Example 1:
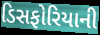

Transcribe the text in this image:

ડિસફોરિયાની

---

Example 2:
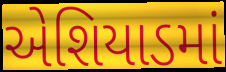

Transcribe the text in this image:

એશિયાડમાં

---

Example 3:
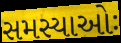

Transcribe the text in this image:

સમસ્યાઓઃ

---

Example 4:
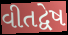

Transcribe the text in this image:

વીતદ્વેષ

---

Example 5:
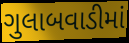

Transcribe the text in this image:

ગુલાબવાડીમાં